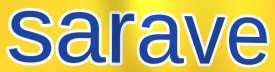
sarave